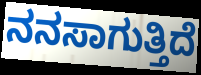
ನನಸಾಗುತ್ತಿದೆ